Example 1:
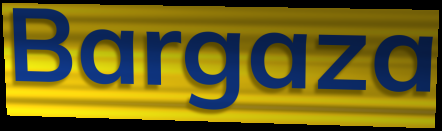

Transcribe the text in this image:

Bargaza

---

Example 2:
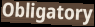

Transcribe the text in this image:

Obligatory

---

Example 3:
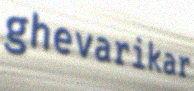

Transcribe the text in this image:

ghevarikar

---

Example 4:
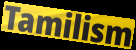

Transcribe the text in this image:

Tamilism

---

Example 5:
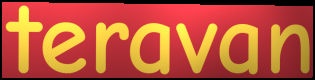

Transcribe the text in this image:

teravan